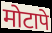
मोटापे